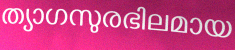
ത്യാഗസുരഭിലമായ